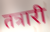
तत्रारी